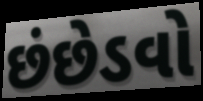
છંછેડવો